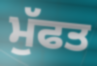
ਮੁੱਫਤ